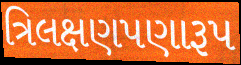
ત્રિલક્ષણપણારૂપ